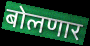
बोलणार